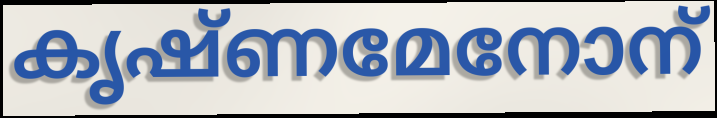
കൃഷ്ണമേനോന്